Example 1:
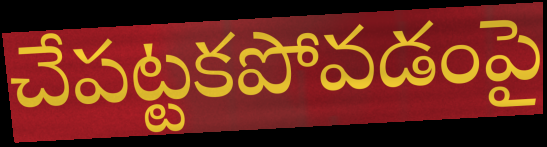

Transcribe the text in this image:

చేపట్టకపోవడంపై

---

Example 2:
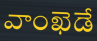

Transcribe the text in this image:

వాంఖెడే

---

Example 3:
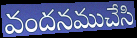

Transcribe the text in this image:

వందనముచేసి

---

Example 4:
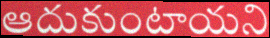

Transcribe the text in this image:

ఆదుకుంటాయని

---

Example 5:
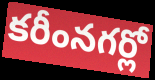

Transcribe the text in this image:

కరీంనగర్లో